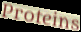
Proteins